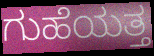
ಗುಹೆಯತ್ತ